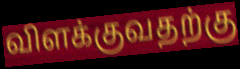
விளக்குவதற்கு